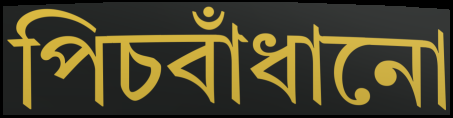
পিচবাঁধানো